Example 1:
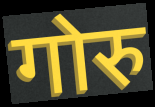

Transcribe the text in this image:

गोरु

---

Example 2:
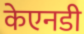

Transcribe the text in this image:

केएनडी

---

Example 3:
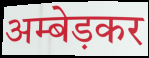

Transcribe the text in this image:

अम्बेड़कर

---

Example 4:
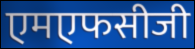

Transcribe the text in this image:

एमएफसीजी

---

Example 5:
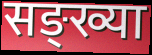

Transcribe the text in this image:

सङ्ख्या